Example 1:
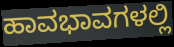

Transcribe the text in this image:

ಹಾವಭಾವಗಳಲ್ಲಿ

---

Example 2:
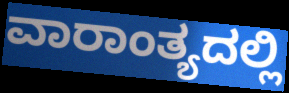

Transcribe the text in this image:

ವಾರಾಂತ್ಯದಲ್ಲಿ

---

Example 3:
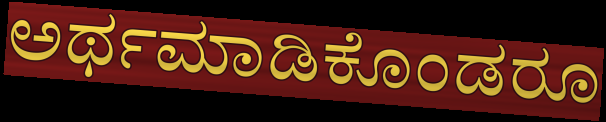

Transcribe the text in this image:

ಅರ್ಥಮಾಡಿಕೊಂಡರೂ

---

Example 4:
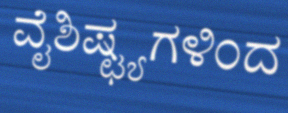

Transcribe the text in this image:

ವೈಶಿಷ್ಟ್ಯಗಳಿಂದ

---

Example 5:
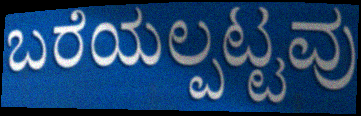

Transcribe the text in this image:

ಬರೆಯಲ್ಪಟ್ಟವು